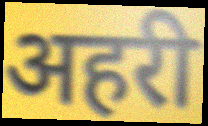
अहरी